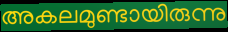
അകലമുണ്ടായിരുന്നു